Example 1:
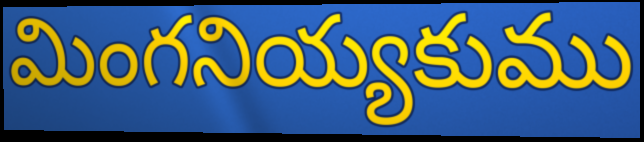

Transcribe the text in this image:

మింగనియ్యకుము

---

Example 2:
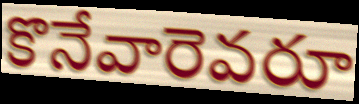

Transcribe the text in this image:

కొనేవారెవరూ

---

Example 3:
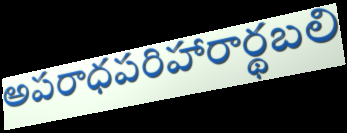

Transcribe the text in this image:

అపరాధపరిహారార్థబలి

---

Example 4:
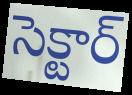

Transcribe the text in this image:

సెక్టార్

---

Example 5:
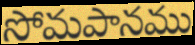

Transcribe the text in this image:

సోమపానము